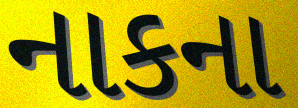
નાકના